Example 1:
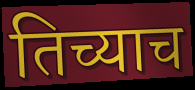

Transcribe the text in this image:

तिच्याच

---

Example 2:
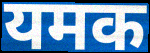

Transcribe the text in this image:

यमक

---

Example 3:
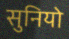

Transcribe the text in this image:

सुनियो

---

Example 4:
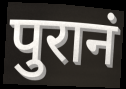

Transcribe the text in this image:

पुरानं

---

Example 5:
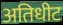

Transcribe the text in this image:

अतिधीट